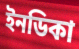
ইনডিকা